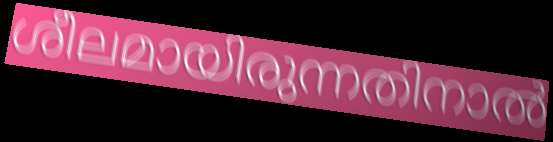
ശീലമായിരുന്നതിനാൽ